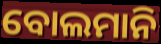
ବୋଲମାନି